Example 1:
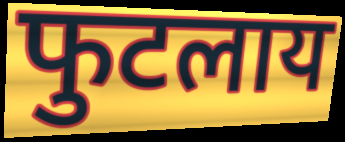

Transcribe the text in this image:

फुटलाय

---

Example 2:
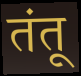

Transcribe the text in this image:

तंतू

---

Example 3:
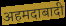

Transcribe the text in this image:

अहमदाबादी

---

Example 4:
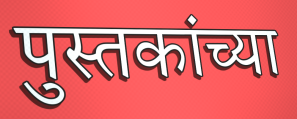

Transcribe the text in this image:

पुस्तकांच्या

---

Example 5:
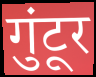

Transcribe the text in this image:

गुंटूर